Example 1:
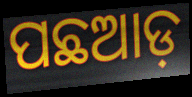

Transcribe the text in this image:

ପଛଆଡ଼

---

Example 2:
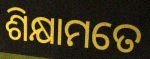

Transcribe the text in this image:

ଶିକ୍ଷାମତେ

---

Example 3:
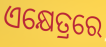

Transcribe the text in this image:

ଏକ୍ଷେତ୍ରରେ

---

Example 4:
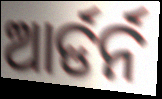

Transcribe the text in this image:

ଆର୍ଡର୍ନ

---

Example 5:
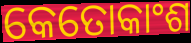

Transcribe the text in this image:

କେତୋକାଂଶ